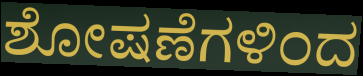
ಶೋಷಣೆಗಳಿಂದ